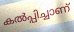
കൽപ്പിച്ചാണ്